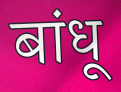
बांधू